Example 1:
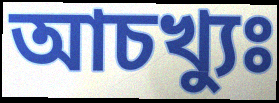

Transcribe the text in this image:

আচখ্যুঃ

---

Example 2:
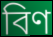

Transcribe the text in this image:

বিণ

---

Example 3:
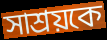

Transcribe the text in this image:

সাশ্রয়কে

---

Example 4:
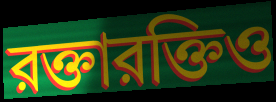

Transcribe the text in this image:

রক্তারক্তিও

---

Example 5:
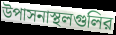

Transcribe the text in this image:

উপাসনাস্থলগুলির